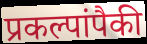
प्रकल्पांपैकी